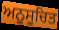
ਅਨੂਸੂਚਿਤ